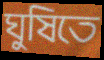
ঘুষিতে